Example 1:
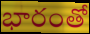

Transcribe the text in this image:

భారంతో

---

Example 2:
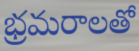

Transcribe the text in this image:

భ్రమరాలతో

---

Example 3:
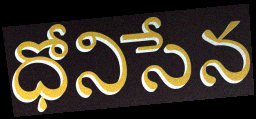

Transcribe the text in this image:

ధోనిసేన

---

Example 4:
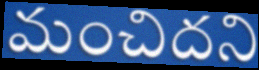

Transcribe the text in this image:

మంచిదని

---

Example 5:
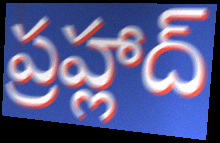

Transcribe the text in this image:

ప్రహ్లాద్